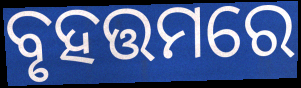
ବୃହତ୍ତମରେ